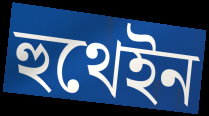
হুথেইন